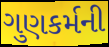
ગુણકર્મની